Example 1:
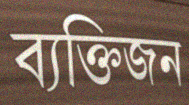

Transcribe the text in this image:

ব্যক্তিজন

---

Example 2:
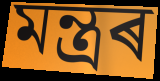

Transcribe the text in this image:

মন্ত্ৰৰ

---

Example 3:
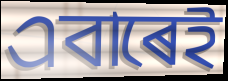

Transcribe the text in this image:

এবাৰেই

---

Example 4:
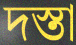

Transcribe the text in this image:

দস্তা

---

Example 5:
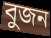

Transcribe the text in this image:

বুজন